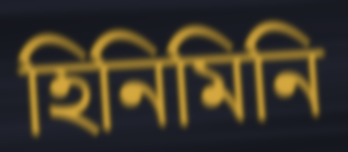
হিনিমিনি